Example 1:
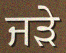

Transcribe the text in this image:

ਜੜੇ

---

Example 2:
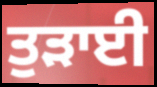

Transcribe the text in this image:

ਤੁੜਾਈ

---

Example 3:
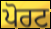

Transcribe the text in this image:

ਪੋਰਟ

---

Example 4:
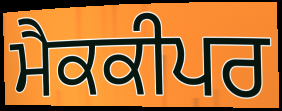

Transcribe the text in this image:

ਮੈਕਕੀਪਰ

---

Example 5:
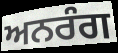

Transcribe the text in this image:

ਅਨਰੰਗ